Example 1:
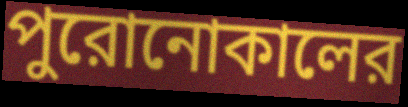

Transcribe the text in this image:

পুরোনোকালের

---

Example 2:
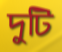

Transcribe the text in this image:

দুটি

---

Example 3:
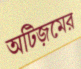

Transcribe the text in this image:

অটিজ়মের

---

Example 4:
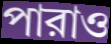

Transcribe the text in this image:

পারাও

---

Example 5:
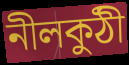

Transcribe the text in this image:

নীলকুঠী